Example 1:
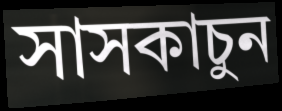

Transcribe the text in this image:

সাসকাচুন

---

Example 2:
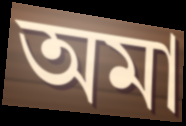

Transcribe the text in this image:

অমা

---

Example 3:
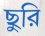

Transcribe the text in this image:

ছুরি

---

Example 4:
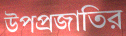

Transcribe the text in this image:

উপপ্রজাতির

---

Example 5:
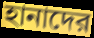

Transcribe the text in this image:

হানাদের